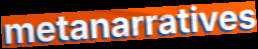
metanarratives